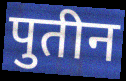
पुतीन